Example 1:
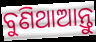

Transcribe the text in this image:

ବୁଣିଥାଆନ୍ତୁ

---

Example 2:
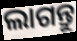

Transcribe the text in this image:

ଲାଗନ୍ତୁ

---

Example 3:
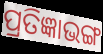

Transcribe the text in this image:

ପ୍ରତିଜ୍ଞାଭଙ୍ଗ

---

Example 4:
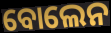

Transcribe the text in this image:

ବୋଲେନ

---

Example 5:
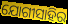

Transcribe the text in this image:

ଯୋଗୀସାହିର